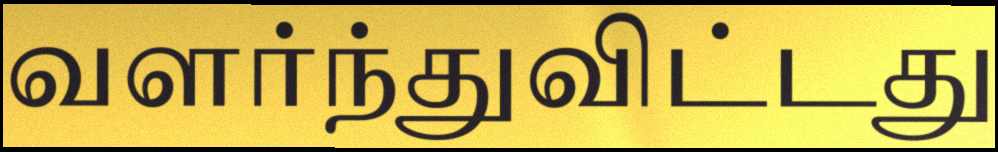
வளர்ந்துவிட்டது